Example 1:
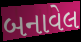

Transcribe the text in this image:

બનાવેલ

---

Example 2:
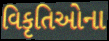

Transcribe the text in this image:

વિકૃતિઓના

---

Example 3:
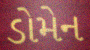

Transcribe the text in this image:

ડોમેન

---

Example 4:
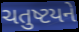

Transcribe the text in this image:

ચતુષ્ટયને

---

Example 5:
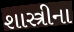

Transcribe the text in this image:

શાસ્ત્રીના